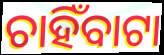
ଚାହିଁବାଟା